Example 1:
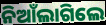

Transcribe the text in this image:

ନିଆଁଲାଗିଲେ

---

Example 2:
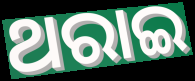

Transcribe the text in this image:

ଥରାଇ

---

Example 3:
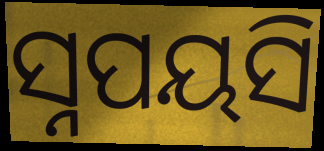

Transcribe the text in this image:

ସ୍ନପୟସି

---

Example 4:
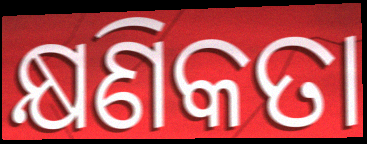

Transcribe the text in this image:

କ୍ଷଣିକତା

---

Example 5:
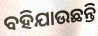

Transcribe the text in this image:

ବହିଯାଉଛନ୍ତି